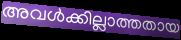
അവൾക്കില്ലാത്തതായ